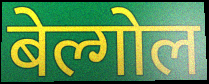
बेल्गोल